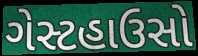
ગેસ્ટહાઉસો